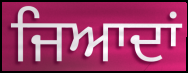
ਜਿਆਦਾਂ